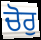
ਚੋਰੁ